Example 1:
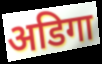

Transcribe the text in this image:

अडिगा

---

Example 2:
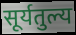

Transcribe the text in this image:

सूर्यतुल्य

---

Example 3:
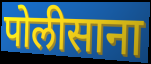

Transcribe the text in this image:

पोलीसाना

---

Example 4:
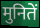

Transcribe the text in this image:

मुनितें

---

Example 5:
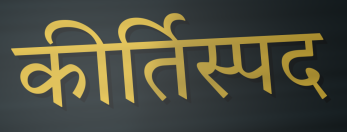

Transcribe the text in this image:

कीर्तिस्पद